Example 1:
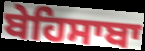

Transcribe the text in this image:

ਬੇਹਿਸਾਬਾ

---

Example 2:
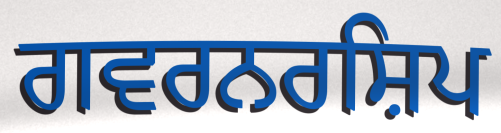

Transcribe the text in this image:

ਗਵਰਨਰਸ਼ਿਪ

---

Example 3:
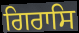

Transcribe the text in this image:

ਗਿਰਾਸਿ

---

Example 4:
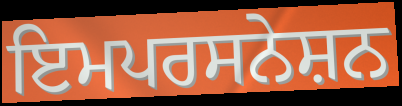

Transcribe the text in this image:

ਇਮਪਰਸਨੇਸ਼ਨ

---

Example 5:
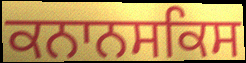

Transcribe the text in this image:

ਕਨਾਨਸਕਿਸ